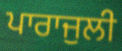
ਪਾਰਾਜੁਲੀ